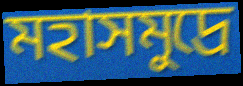
মহাসমুদ্রে